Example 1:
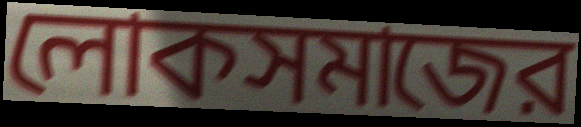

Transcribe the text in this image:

লোকসমাজের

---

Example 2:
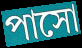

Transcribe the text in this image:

পাসো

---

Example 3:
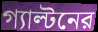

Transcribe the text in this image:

গ্যাল্টনের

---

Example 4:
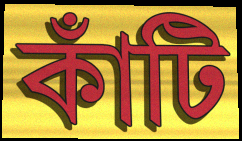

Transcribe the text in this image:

কাঁটি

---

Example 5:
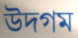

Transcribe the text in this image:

উদগম